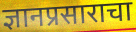
ज्ञानप्रसाराचा